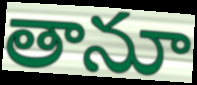
తానూ